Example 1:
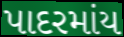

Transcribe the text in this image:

પાદરમાંય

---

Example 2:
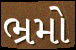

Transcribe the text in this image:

ભ્રમો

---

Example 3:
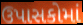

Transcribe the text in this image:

ઉપાસકોમાં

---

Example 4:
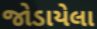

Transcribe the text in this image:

જોડાયેલા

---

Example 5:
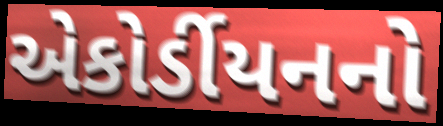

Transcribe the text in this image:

એકોર્ડીયનનો